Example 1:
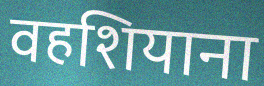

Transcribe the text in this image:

वहशियाना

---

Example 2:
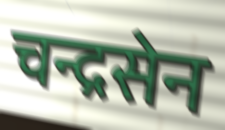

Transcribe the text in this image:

चन्द्रसेन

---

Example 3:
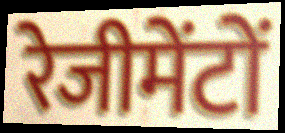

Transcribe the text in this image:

रेजीमेंटों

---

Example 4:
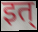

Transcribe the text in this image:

इत्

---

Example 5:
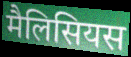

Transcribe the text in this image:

मैलिसियस